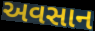
અવસાન